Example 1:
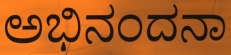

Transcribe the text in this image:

ಅಭಿನಂದನಾ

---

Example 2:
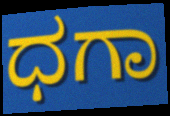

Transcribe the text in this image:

ಧಗಾ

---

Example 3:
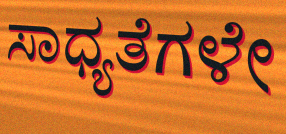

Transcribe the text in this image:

ಸಾಧ್ಯತೆಗಳೇ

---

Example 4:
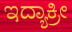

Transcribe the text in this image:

ಇದ್ಯಾಕ್ರೀ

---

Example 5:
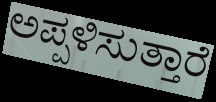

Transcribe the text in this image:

ಅಪ್ಪಳಿಸುತ್ತಾರೆ